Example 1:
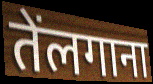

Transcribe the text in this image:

तेंलगाना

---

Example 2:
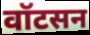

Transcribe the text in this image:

वॉटसन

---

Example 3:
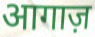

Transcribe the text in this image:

आगाज़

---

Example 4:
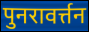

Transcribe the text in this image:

पुनरावर्त्तन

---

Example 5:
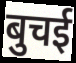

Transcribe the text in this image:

बुचई